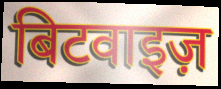
बिटवाइज़